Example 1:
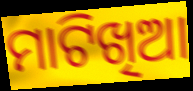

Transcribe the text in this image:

ମାଟିଖିଆ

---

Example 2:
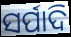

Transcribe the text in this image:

ସର୍ପାଦି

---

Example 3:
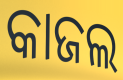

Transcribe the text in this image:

କାଜଲ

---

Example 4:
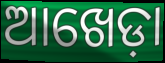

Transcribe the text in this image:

ଆଖେଡ଼ା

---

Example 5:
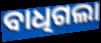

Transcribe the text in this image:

ବାଧିଗଲା